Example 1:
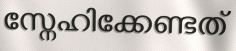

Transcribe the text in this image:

സ്നേഹിക്കേണ്ടത്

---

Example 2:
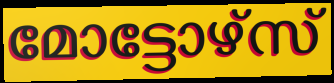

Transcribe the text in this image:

മോട്ടോഴ്സ്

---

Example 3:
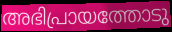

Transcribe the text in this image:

അഭിപ്രായത്തോടു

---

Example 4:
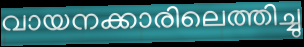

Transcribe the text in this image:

വായനക്കാരിലെത്തിച്ചു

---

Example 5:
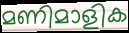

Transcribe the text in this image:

മണിമാളിക